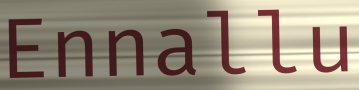
Ennallu